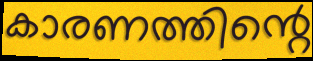
കാരണത്തിന്റെ